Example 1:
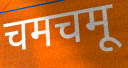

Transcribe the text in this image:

चमचमू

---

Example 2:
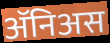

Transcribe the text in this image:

ॲनिअस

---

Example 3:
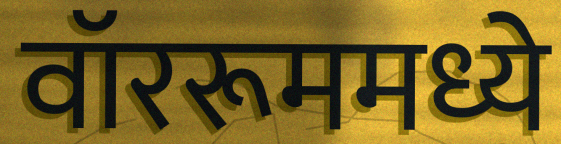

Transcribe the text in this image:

वॉररूममध्ये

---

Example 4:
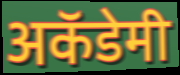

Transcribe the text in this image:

अकॅडेमी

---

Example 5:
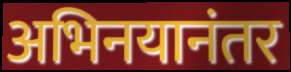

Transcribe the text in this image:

अभिनयानंतर